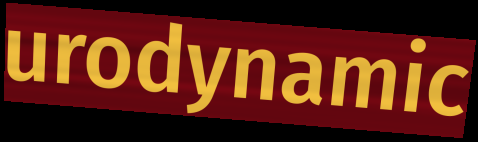
urodynamic